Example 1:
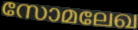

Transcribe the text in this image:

സോമലേഖ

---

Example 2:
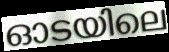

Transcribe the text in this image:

ഓടയിലെ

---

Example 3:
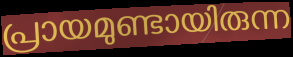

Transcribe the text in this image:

പ്രായമുണ്ടായിരുന്ന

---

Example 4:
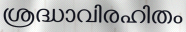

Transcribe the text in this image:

ശ്രദ്ധാവിരഹിതം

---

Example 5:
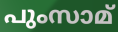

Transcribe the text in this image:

പുംസാമ്